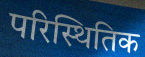
परिस्थितिक